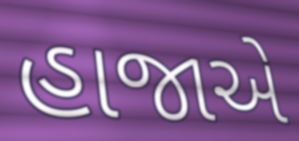
હાજાએ